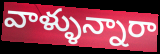
వాళ్ళున్నారా